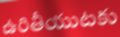
ఉరితీయుటకు